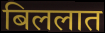
बिललात